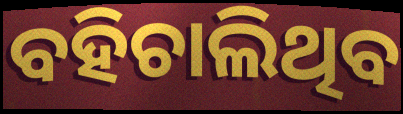
ବହିଚାଲିଥିବ